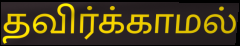
தவிர்க்காமல்